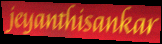
jeyanthisankar